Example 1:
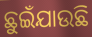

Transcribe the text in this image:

ଛୁଇଁଯାଉଛି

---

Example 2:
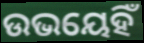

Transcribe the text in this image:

ଉଭୟେହିଁ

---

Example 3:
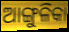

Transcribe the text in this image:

ଆଙ୍ଗୁଳିକା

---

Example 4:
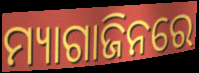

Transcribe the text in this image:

ମ୍ୟାଗାଜିନରେ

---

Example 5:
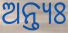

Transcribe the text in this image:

ଅନ୍ତ୍ୟଃ